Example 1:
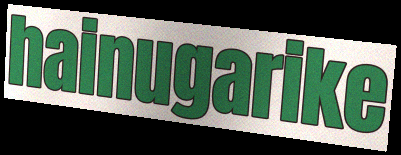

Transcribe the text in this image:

hainugarike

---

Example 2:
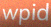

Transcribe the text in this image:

wpid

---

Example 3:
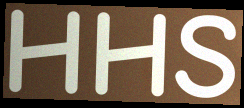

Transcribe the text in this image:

HHS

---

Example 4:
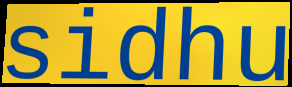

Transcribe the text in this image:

sidhu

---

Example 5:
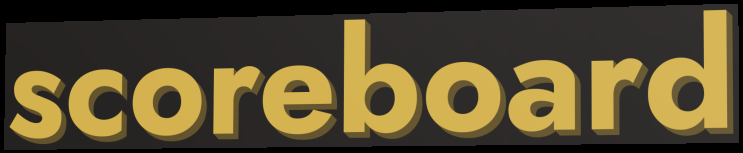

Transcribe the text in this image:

scoreboard